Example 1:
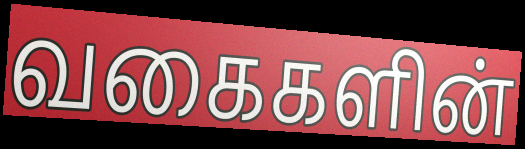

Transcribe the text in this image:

வகைகளின்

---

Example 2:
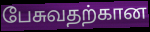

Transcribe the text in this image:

பேசுவதற்கான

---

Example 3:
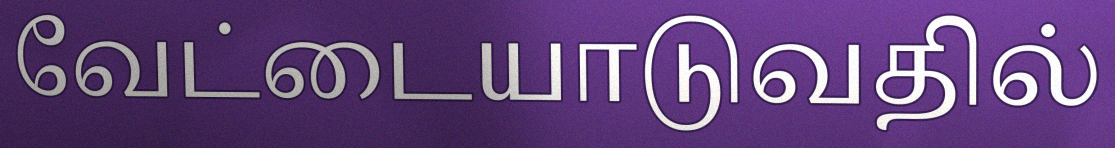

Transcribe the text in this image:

வேட்டையாடுவதில்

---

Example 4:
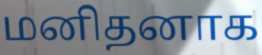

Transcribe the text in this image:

மனிதனாக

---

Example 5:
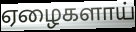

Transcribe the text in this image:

ஏழைகளாய்